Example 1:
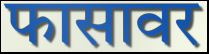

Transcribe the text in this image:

फासावर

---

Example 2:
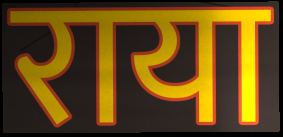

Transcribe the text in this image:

राया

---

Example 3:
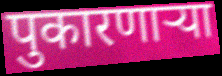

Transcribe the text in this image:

पुकारणार्‍या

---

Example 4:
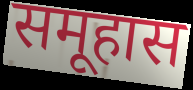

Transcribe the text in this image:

समूहास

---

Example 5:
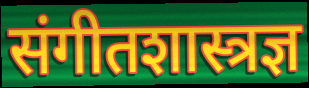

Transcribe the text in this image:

संगीतशास्त्रज्ञ